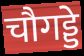
चौगड्डे